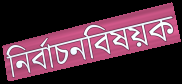
নির্বাচনবিষয়ক